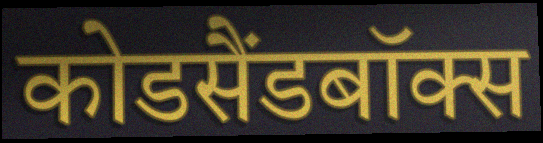
कोडसैंडबॉक्स